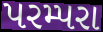
પરમ્પરા